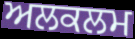
ਅਲਕਲਮ